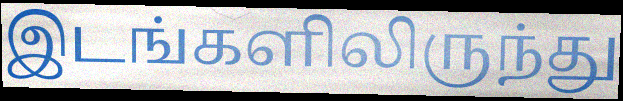
இடங்களிலிருந்து